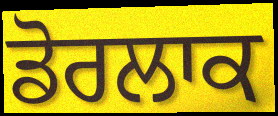
ਡੋਰਲਾਕ